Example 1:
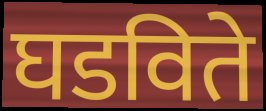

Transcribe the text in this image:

घडविते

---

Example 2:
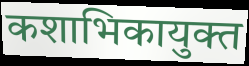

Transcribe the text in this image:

कशाभिकायुक्त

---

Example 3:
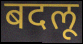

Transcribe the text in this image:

बदलू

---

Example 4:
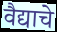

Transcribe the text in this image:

वैद्याचे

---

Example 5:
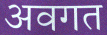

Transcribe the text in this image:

अवगत